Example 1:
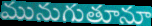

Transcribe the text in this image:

మునుగుతూనూ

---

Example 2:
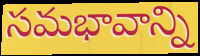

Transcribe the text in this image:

సమభావాన్ని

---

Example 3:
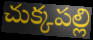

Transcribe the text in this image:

చుక్కపల్లి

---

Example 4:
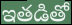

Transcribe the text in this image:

ఇతడితో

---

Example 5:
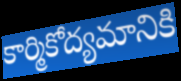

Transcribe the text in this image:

కార్మికోద్యమానికి